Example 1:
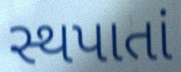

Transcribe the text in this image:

સ્થપાતાં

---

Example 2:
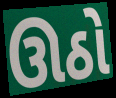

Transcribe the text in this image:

ઊઠો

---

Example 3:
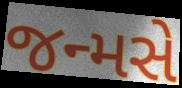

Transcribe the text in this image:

જન્મસે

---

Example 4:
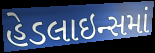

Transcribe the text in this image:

હેડલાઇન્સમાં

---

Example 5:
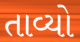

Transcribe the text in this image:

તાવ્યો